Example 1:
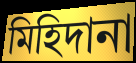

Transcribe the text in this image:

মিহিদানা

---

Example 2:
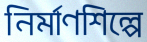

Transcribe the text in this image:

নির্মাণশিল্পে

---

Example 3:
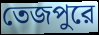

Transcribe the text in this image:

তেজপুরে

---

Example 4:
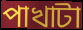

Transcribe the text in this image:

পাখাটা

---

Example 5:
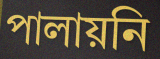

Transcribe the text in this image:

পালায়নি